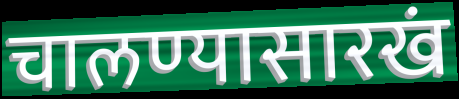
चालण्यासारखं